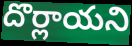
దొర్లాయని